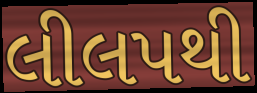
લીલપથી